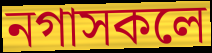
নগাসকলে